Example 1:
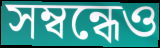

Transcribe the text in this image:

সম্বন্ধেও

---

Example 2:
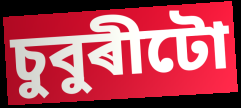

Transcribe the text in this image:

চুবুৰীটো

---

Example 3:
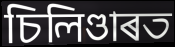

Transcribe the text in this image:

চিলিণ্ডাৰত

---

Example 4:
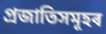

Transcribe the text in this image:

প্ৰজাতিসমূহৰ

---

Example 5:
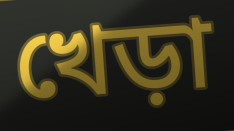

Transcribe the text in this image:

খেড়া